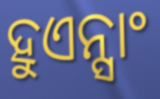
ହୁଏନ୍ସାଂ